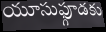
యూసుఫ్గూడకు